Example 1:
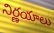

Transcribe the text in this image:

నిర్ణయాలు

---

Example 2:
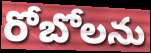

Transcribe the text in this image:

రోబోలను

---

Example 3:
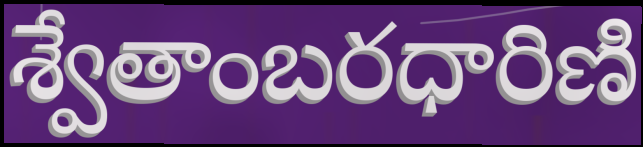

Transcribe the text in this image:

శ్వేతాంబరధారిణి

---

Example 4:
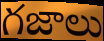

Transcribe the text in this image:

గజాలు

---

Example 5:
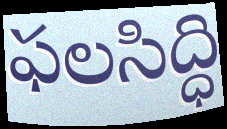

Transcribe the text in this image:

ఫలసిద్ధి